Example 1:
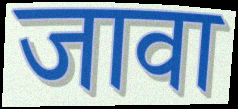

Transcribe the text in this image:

जावा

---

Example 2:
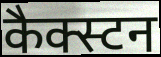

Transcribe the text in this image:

कैक्स्टन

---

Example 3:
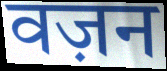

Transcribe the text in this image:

वज़न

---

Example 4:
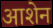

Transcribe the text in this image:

आशेन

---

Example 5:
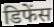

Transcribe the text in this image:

डिफेंस